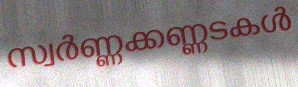
സ്വർണ്ണക്കണ്ണടകൾ